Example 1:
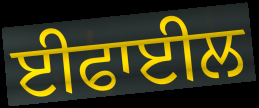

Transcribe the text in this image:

ਈਫਾਈਲ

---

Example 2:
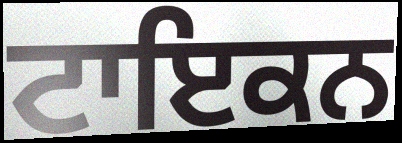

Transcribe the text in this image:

ਟਾਇਕਨ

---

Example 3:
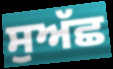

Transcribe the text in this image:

ਸੁਅੱਛ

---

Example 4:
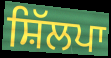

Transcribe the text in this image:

ਸ਼ਿੱਲਪਾ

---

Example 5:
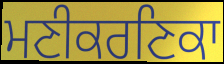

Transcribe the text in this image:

ਮਣੀਕਰਣਿਕਾ